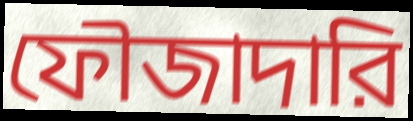
ফৌজাদারি